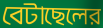
বেটাছেলের